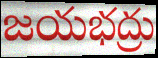
జయభద్రు